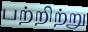
பற்றிற்று